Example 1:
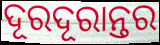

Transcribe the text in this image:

ଦୂରଦୂରାନ୍ତର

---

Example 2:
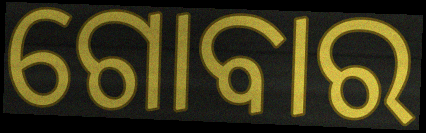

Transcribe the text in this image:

ଗୋବାର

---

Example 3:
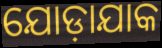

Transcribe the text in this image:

ଯୋଡ଼ାଯାକ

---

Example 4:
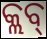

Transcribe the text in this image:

କ୍ଲବ୍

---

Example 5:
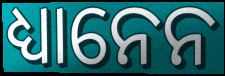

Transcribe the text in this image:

ଧ୍ୟାନେନ